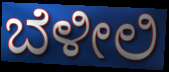
ಬೆಳೀಲಿ